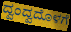
ದ್ವಂದ್ವದೊಳಗೆ